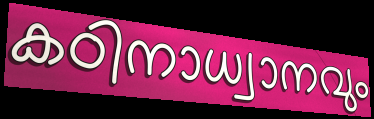
കഠിനാധ്വാനവും